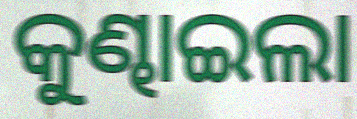
କୁଣ୍ଢାଇଲା